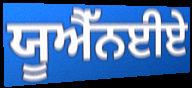
ਯੂਐੱਨਈਏ